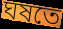
ঘষতে